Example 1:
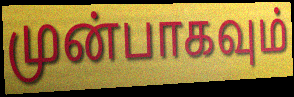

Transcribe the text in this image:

முன்பாகவும்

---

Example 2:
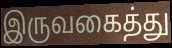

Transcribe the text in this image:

இருவகைத்து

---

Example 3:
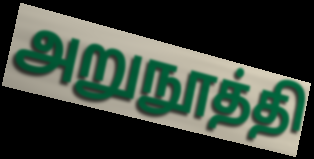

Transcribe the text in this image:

அறுநூத்தி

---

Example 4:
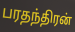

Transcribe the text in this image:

பரதந்திரன்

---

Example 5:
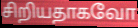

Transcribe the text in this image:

சிறியதாகவோ